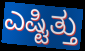
ಎಷ್ಟಿತ್ತು